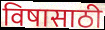
विषासाठी